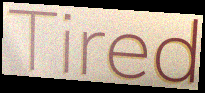
Tired